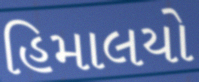
હિમાલયો